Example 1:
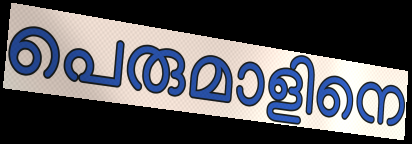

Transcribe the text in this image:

പെരുമാളിനെ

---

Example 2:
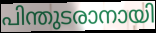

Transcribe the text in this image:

പിന്തുടരാനായി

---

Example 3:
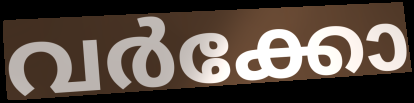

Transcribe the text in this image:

വർക്കോ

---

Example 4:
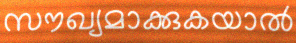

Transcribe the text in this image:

സൗഖ്യമാക്കുകയാൽ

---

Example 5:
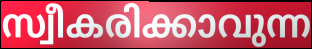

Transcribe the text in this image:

സ്വീകരിക്കാവുന്ന